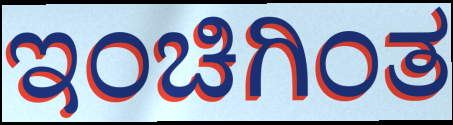
ಇಂಚಿಗಿಂತ